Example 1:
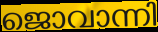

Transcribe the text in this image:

ജൊവാന്നി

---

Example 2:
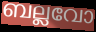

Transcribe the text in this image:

ബല്ലവോ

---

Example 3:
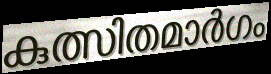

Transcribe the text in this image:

കുത്സിതമാർഗം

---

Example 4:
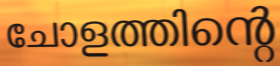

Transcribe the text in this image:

ചോളത്തിന്റെ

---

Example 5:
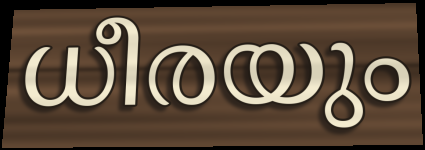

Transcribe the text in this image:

ധീരയും